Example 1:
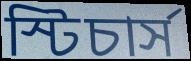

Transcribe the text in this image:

স্টিচার্স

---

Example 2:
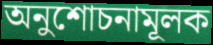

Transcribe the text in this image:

অনুশোচনামূলক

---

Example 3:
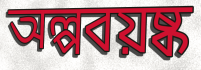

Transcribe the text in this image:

অল্পবয়ষ্ক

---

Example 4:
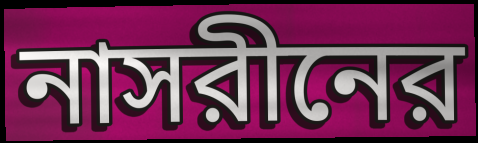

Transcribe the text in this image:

নাসরীনের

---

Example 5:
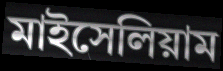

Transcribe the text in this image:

মাইসেলিয়াম